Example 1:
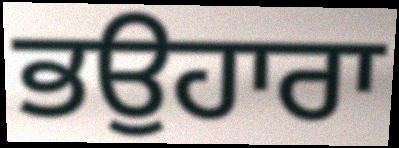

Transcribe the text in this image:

ਭਉਹਾਰਾ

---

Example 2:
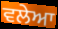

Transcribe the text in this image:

ਵਲੇਆ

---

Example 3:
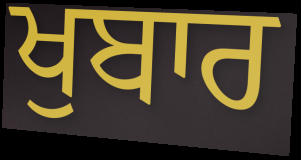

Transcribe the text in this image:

ਖੁਬਾਰ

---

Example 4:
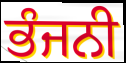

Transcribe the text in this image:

ਭੰਜਨੀ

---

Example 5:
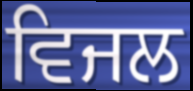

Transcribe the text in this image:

ਵਿਜਲ